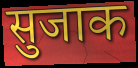
सुजाक